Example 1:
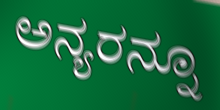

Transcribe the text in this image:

ಅನ್ಯರನ್ನೂ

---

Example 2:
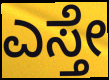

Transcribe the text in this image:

ಎಸ್ತೇ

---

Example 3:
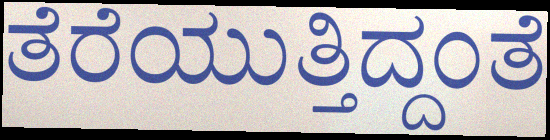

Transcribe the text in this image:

ತೆರೆಯುತ್ತಿದ್ದಂತೆ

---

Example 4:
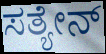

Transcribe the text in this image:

ಸತ್ಯೇನ್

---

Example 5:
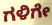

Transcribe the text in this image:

ಗಳಿಗೇ